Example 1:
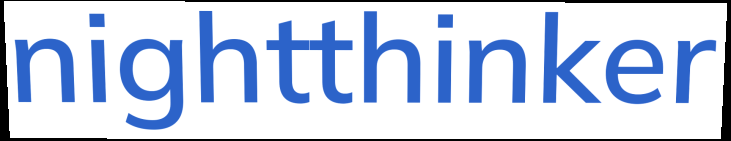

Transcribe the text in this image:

nightthinker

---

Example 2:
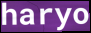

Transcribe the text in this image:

haryo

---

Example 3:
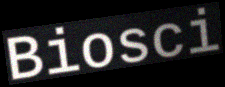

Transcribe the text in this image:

Biosci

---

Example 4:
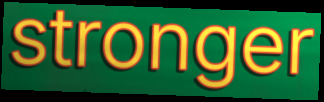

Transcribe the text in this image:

stronger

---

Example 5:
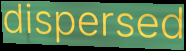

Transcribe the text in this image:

dispersed